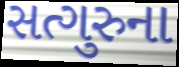
સત્ગુરુના